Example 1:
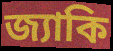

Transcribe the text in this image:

জ্যাকি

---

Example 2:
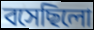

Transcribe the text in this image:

বসেছিলো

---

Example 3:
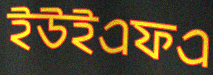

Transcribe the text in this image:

ইউইএফএ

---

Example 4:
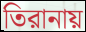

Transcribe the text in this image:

তিরানায়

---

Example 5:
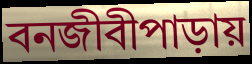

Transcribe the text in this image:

বনজীবীপাড়ায়